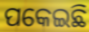
ପକେଇଛି